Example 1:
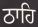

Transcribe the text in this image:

ਠਾਹਿ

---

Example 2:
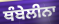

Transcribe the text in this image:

ਥੰਬੇਲੀਨਾ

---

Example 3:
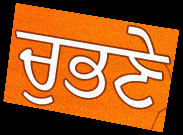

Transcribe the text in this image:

ਚੁਭਣੇ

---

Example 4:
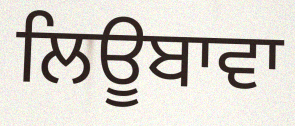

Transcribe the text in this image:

ਲਿਊਬਾਵਾ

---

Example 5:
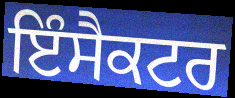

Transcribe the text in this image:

ਇੰਸੈਕਟਰ